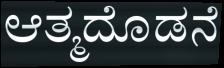
ಆತ್ಮದೊಡನೆ